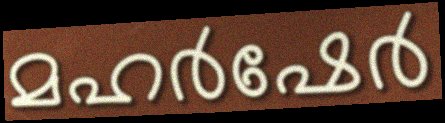
മഹർഷേർ